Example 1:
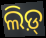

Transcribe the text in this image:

ଲିଡ଼୍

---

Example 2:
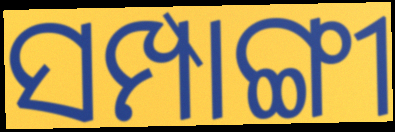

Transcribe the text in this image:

ସମ୍ପାଙ୍ଗୀ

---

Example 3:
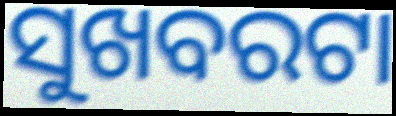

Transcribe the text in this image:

ସୁଖବରଟା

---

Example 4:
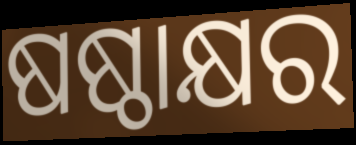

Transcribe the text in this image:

ଷଷ୍ଠାକ୍ଷର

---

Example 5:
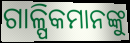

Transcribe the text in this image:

ଗାଳ୍ପିକମାନଙ୍କୁ